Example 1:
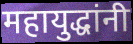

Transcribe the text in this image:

महायुद्धांनी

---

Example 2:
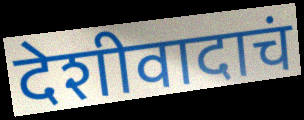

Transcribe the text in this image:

देशीवादाचं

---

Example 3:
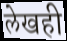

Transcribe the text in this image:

लेखही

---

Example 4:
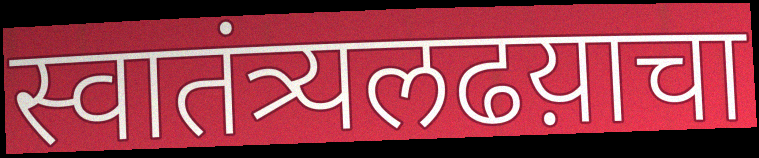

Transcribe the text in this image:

स्वातंत्र्यलढय़ाचा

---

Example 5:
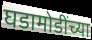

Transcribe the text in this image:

घडामोडींच्या